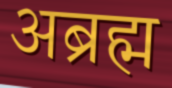
अब्रह्म